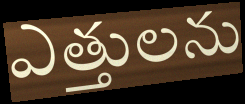
ఎత్తులను